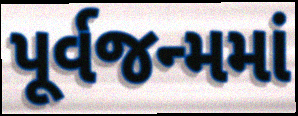
પૂર્વજન્મમાં